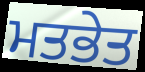
ਮਤਭੇਤ